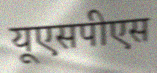
यूएसपीएस